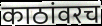
काठांवरच